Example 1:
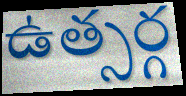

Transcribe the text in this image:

ఉత్సర్గ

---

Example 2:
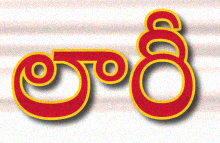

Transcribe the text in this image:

లారీ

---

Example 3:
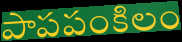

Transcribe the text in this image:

పాపపంకిలం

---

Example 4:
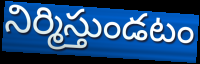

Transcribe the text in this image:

నిర్మిస్తుండటం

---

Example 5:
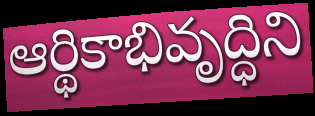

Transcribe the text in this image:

ఆర్థికాభివృద్ధిని